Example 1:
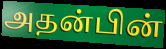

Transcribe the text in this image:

அதன்பின்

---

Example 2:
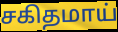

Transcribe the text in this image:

சகிதமாய்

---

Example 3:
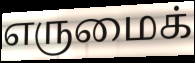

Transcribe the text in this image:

எருமைக்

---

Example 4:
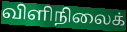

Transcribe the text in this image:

விளிநிலைக்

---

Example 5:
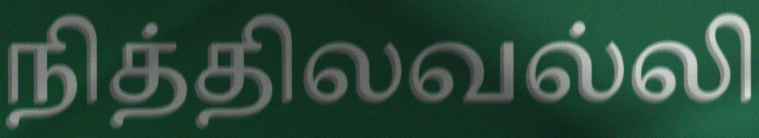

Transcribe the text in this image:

நித்திலவல்லி